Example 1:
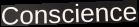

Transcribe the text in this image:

Conscience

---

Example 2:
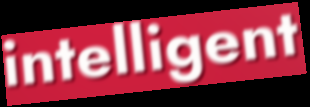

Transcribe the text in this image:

intelligent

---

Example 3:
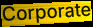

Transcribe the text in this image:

Corporate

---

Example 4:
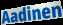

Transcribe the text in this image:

Aadinen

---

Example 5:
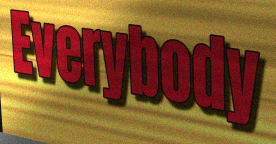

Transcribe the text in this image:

Everybody